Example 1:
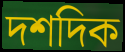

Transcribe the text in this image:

দশদিক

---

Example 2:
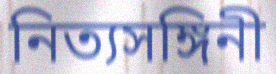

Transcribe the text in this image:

নিত্যসঙ্গিনী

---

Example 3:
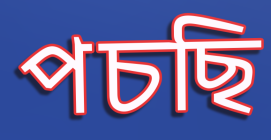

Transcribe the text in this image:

পচছি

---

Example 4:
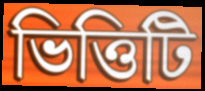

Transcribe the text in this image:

ভিত্তিটি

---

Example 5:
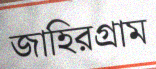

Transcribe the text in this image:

জাহিরগ্রাম